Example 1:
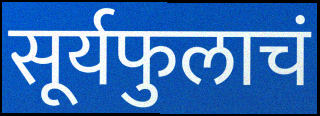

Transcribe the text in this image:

सूर्यफुलाचं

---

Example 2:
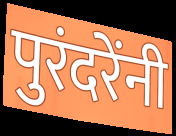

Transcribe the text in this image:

पुरंदरेंनी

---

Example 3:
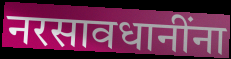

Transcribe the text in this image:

नरसावधानींना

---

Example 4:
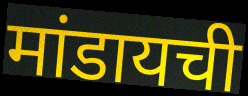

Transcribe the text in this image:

मांडायची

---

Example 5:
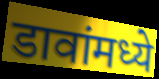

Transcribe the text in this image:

डावांमध्ये